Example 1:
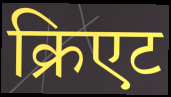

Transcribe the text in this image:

क्रिएट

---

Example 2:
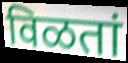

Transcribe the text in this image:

विळतां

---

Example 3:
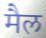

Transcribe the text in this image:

मैल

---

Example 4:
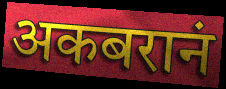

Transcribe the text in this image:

अकबरानं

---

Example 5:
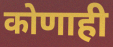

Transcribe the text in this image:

कोणाही